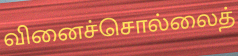
வினைச்சொல்லைத்